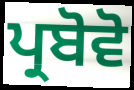
ਪ੍ਰਬੋਵੋ